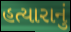
હત્યારાનું